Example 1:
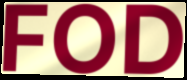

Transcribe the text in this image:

FOD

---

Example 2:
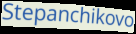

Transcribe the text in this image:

Stepanchikovo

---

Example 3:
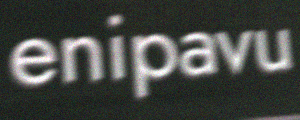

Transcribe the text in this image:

enipavu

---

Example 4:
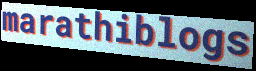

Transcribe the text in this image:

marathiblogs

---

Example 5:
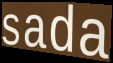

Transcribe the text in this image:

sada